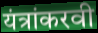
यंत्रांकरवी